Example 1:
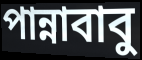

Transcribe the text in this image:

পান্নাবাবু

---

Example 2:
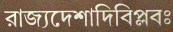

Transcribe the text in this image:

রাজ্যদেশাদিবিপ্লবঃ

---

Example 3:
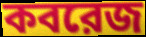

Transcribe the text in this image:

কবরেজ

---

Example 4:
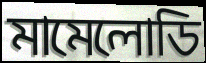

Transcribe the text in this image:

মামেলোডি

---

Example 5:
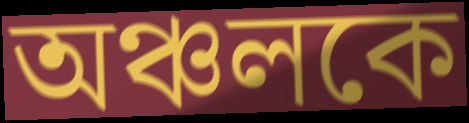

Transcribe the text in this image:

অঞ্চলকে